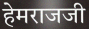
हेमराजजी